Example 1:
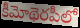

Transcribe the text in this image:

కీమోథెరపీలో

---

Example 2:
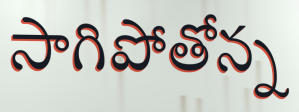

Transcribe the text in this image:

సాగిపోతోన్న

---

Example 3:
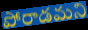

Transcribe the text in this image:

పోరాడమని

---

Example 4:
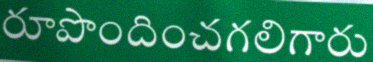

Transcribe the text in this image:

రూపొందించగలిగారు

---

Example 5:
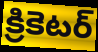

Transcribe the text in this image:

క్రికెటర్